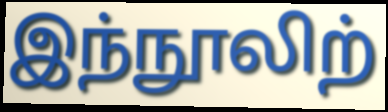
இந்நூலிற்